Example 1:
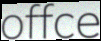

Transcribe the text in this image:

offce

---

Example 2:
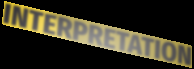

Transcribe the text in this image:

INTERPRETATION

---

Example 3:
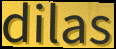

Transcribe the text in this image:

dilas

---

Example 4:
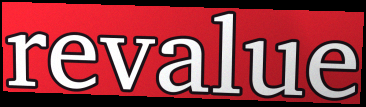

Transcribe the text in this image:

revalue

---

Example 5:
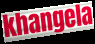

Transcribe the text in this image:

khangela